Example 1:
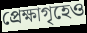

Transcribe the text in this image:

প্রেক্ষাগৃহেও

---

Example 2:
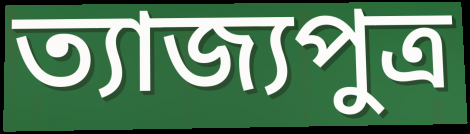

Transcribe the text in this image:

ত্যাজ্যপুত্র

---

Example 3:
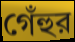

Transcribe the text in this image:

গেঁহুর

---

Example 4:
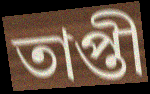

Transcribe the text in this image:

তাপ্তী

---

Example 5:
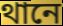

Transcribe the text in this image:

থানে